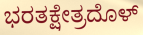
ಭರತಕ್ಷೇತ್ರದೊಳ್